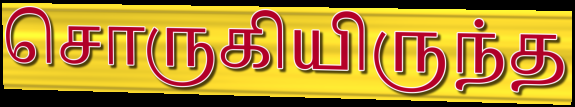
சொருகியிருந்த